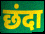
छंदा